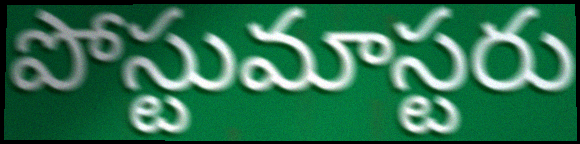
పోస్టుమాస్టరు